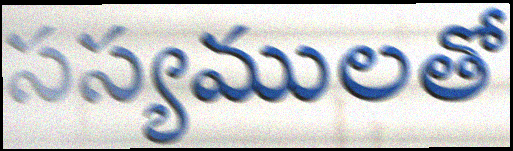
సస్యములతో